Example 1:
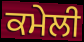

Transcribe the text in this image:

ਕਮੇਲੀ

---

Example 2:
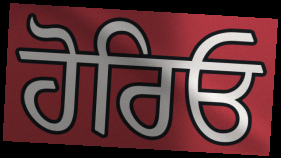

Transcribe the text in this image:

ਹੋਰਿਓ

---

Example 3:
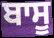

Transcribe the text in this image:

ਬਾਸੂ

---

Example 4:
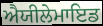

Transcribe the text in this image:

ਐਯੀਲੇਮਾਇਡ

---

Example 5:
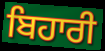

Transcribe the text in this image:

ਬਿਹਾਰੀ